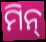
ମିନ୍